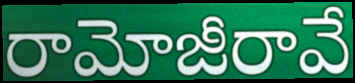
రామోజీరావే